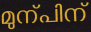
മുന്പിന്